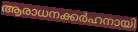
ആരാധനക്കർഹനായി